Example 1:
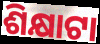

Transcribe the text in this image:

ଶିକ୍ଷାଟା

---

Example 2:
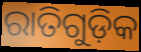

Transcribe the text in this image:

ରାତିଗୁଡ଼ିକ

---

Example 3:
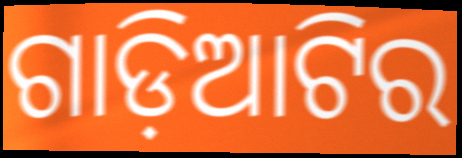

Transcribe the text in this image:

ଗାଡ଼ିଆଟିର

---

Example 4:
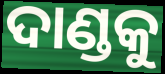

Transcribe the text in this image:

ଦାଣ୍ଡକୁ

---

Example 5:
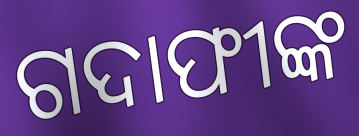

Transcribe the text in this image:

ଗଦାଫୀଙ୍କ